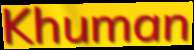
Khuman